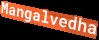
Mangalvedha